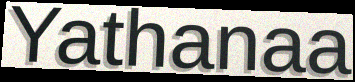
Yathanaa